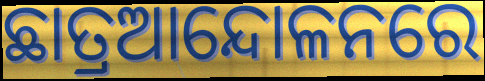
ଛାତ୍ରଆନ୍ଦୋଳନରେ